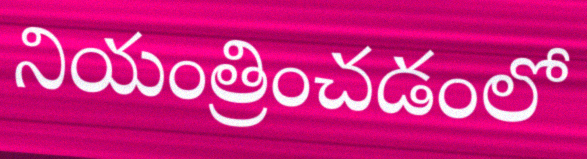
నియంత్రించడంలో